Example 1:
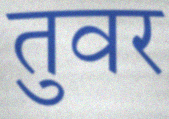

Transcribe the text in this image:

तुवर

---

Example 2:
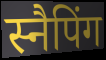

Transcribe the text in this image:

स्नैपिंग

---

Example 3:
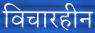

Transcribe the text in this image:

विचारहीन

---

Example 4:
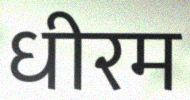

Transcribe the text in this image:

धीरम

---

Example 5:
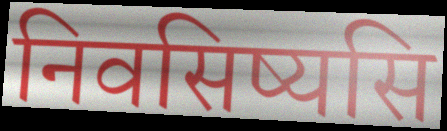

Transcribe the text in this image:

निवसिष्यसि